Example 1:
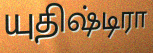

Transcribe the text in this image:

யுதிஷ்டிரா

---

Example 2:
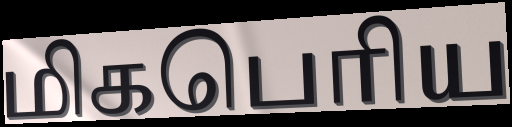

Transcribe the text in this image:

மிகபெரிய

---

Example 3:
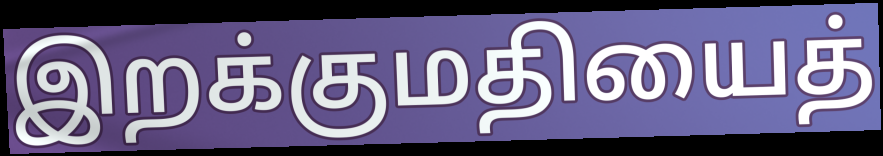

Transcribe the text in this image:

இறக்குமதியைத்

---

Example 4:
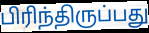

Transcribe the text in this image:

பிரிந்திருப்பது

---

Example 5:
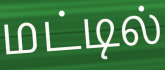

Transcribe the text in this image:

மட்டில்